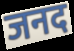
जनद